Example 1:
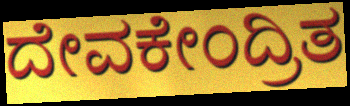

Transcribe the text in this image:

ದೇವಕೇಂದ್ರಿತ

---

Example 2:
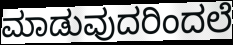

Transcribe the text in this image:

ಮಾಡುವುದರಿಂದಲೆ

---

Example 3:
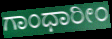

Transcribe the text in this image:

ಗಾಂಧಾರೀಂ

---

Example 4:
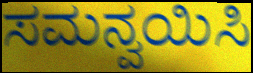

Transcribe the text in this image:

ಸಮನ್ವಯಿಸಿ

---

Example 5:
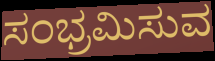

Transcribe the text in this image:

ಸಂಭ್ರಮಿಸುವ